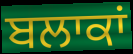
ਬਲਾਕਾਂ